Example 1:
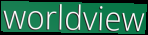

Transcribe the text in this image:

worldview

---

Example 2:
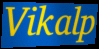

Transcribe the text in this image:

Vikalp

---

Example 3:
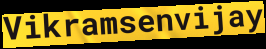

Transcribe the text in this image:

Vikramsenvijay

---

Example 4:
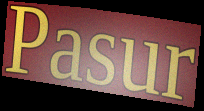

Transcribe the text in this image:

Pasur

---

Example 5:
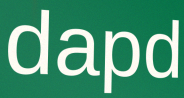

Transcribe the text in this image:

dapd